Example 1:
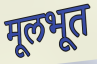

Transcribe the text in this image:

मूलभूत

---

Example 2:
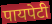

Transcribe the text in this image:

पायपेटी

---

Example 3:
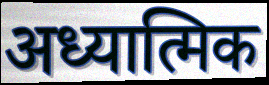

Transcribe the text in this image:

अध्यात्मिक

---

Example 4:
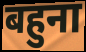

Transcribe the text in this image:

बहुना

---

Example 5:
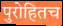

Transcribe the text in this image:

पुरोहितच